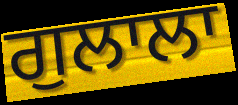
ਗੁਲਾਲਾ